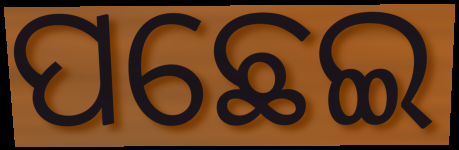
ପଛେଇ